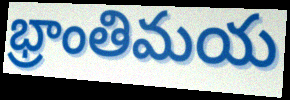
భ్రాంతిమయ